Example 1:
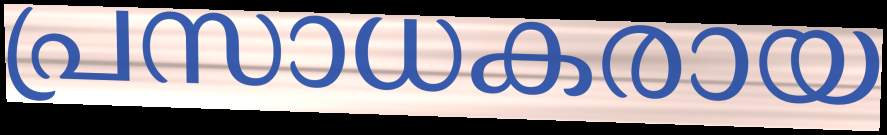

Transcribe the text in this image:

പ്രസാധകരായ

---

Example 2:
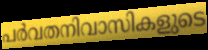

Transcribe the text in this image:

പർവതനിവാസികളുടെ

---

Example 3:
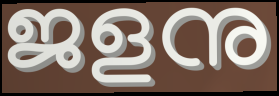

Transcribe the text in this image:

ജളനു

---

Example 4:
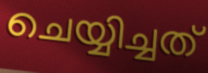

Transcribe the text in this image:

ചെയ്യിച്ചത്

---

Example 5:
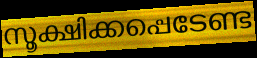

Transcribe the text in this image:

സൂക്ഷിക്കപ്പെടേണ്ട